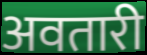
अवतारी